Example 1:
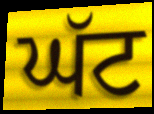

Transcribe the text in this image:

ਘੱਟ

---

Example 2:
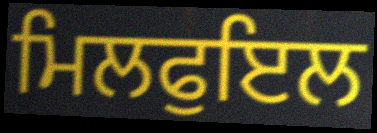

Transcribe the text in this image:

ਮਿਲਫੁਇਲ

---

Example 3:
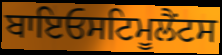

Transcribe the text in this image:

ਬਾਇਓਸਟਿਮੂਲੈਂਟਸ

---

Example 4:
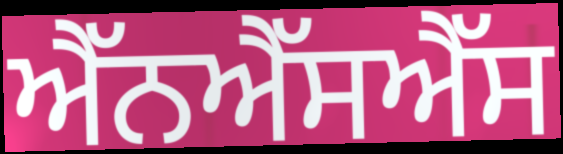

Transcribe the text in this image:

ਐੱਨਐੱਸਐੱਸ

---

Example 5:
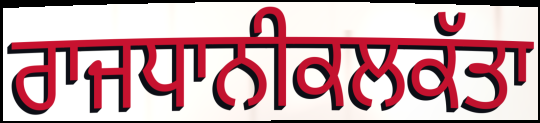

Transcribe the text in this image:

ਰਾਜਧਾਨੀਕਲਕੱਤਾ